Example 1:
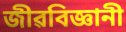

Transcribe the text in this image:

জীৱবিজ্ঞানী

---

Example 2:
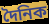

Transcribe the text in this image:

দৈনিক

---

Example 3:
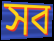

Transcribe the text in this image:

সব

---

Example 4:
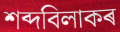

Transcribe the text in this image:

শব্দবিলাকৰ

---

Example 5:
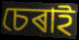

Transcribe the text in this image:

চেৰাই